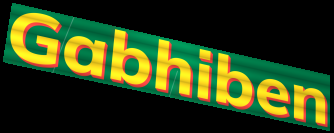
Gabhiben